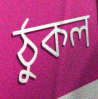
ঠুকল